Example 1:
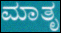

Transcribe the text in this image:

ಮಾತೃ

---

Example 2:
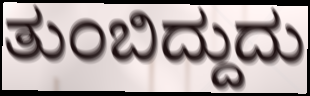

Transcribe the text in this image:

ತುಂಬಿದ್ದುದು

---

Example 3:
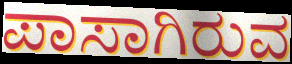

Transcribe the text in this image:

ಪಾಸಾಗಿರುವ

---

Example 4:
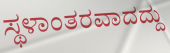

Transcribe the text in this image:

ಸ್ಥಳಾಂತರವಾದದ್ದು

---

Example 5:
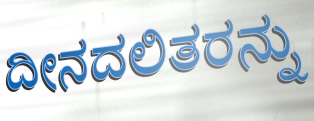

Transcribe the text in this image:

ದೀನದಲಿತರನ್ನು